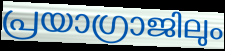
പ്രയാഗ്രാജിലും